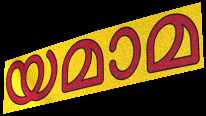
യമാമ